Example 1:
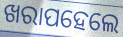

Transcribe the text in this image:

ଖରାପହେଲେ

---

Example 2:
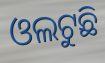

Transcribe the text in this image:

ଓଲଟୁଛି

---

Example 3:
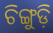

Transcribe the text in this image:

ଚିଙ୍ଗୁଡ଼ି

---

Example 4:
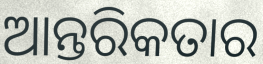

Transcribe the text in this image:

ଆନ୍ତରିକତାର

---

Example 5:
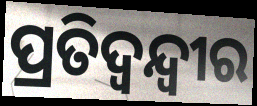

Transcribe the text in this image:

ପ୍ରତିଦ୍ବନ୍ଦ୍ବୀର